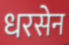
धरसेन